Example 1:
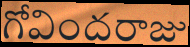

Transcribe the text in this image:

గోవిందరాజు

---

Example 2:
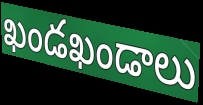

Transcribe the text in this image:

ఖండఖండాలు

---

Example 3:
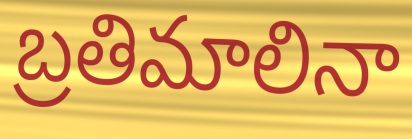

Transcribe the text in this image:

బ్రతిమాలినా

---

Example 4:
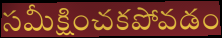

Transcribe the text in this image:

సమీక్షించకపోవడం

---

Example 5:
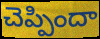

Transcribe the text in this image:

చెప్పిందా